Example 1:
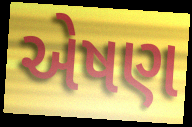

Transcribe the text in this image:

એષણ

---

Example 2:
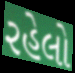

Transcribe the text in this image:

રહેલો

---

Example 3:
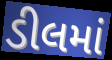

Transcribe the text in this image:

ડીલમાં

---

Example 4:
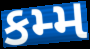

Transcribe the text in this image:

કમ્મ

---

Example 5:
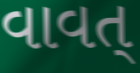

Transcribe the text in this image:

વાવત્